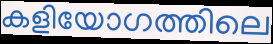
കളിയോഗത്തിലെ